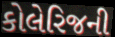
કોલેરિજની